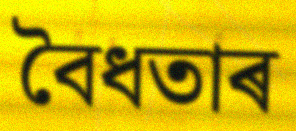
বৈধতাৰ